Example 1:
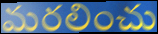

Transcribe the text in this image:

మరలించు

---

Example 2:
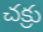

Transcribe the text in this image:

చక్రు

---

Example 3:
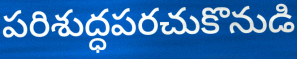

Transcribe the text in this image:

పరిశుద్ధపరచుకొనుడి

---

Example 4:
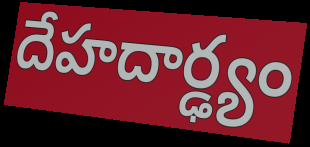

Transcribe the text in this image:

దేహదార్ఢ్యం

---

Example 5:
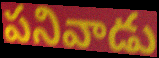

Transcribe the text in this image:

పనివాడు